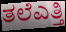
ತಲೆಎತ್ತಿ